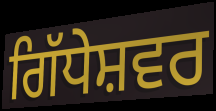
ਗਿੱਧੇਸ਼ਵਰ